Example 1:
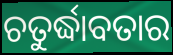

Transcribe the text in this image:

ଚତୁର୍ଦ୍ଧାବତାର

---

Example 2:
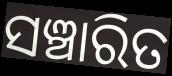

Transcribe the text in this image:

ସଞ୍ଚାରିତ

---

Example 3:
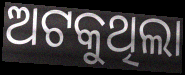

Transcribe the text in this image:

ଅଟକୁଥିଲା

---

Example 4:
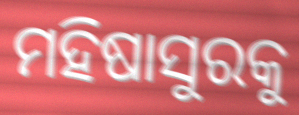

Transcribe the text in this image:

ମହିଷାସୁରକୁ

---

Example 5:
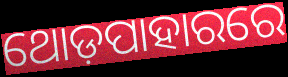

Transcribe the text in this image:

ଥୋଡ଼ପାହାରରେ